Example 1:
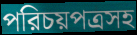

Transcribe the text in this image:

পরিচয়পত্রসহ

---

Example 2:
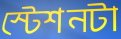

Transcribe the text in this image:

স্টেশনটা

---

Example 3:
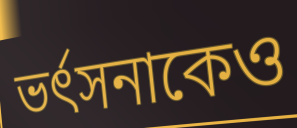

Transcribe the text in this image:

ভর্ৎসনাকেও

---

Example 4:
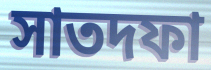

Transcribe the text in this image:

সাতদফা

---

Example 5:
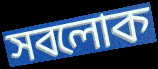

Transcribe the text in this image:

সবলোক